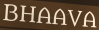
BHAAVA